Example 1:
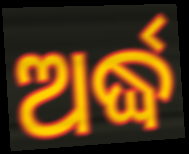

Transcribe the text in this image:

ଅର୍ଦ୍ଧ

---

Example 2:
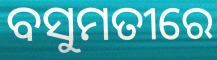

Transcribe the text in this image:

ବସୁମତୀରେ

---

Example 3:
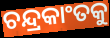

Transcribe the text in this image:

ଚନ୍ଦ୍ରକାଂତକୁ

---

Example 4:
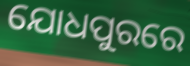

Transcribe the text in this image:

ଯୋଧପୁରରେ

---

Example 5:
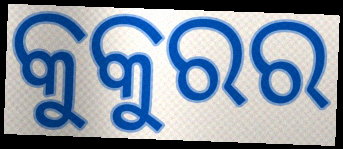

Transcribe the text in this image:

କୁକୁରର